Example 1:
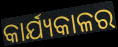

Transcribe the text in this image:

କାର୍ଯ୍ୟକାଳର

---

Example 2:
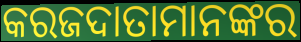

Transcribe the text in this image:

କରଜଦାତାମାନଙ୍କର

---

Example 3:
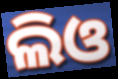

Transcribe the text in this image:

ଲିଓ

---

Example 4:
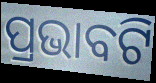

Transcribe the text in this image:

ପ୍ରଭାବଟି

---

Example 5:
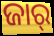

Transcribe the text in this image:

ଜାର୍